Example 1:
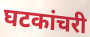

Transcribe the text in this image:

घटकांचरी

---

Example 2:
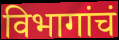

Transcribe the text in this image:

विभागांचं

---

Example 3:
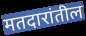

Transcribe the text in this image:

मतदारांतील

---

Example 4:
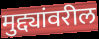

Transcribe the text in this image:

मुद्द्यांवरील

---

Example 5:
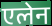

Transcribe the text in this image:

एलेन